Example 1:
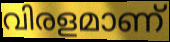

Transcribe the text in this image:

വിരളമാണ്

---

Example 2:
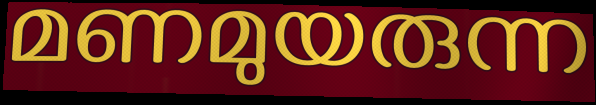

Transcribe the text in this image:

മണമുയരുന്ന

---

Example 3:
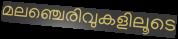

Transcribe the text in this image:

മലഞ്ചെരിവുകളിലൂടെ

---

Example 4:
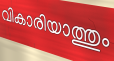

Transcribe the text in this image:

വികാരിയാത്തും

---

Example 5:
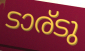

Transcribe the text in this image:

ടാര്ടു